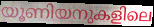
യൂണിയനുകളിലെ